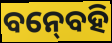
ବନ୍‍ବେହି